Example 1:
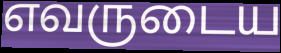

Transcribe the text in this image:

எவருடைய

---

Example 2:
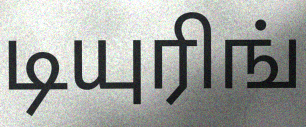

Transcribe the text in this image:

டியுரிங்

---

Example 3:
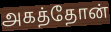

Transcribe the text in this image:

அகத்தோன்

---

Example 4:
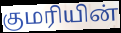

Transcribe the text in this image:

குமரியின்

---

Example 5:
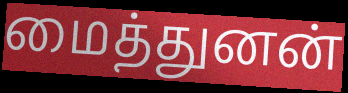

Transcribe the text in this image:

மைத்துனன்